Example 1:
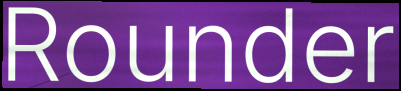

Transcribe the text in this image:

Rounder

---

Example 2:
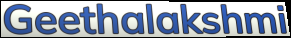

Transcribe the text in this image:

Geethalakshmi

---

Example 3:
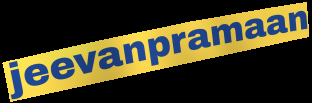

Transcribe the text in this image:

jeevanpramaan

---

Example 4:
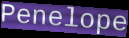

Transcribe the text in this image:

Penelope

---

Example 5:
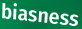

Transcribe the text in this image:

biasness